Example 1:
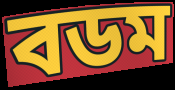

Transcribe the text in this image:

বডম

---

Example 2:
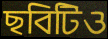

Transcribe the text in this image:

ছবিটিও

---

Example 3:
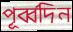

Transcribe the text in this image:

পূর্ব্বদিন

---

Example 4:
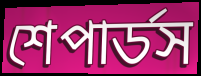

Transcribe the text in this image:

শেপার্ডস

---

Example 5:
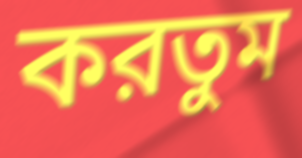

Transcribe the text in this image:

করতুম